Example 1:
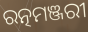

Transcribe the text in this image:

ରତ୍ନମଞ୍ଜରୀ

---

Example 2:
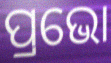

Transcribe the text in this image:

ପ୍ରଭୋ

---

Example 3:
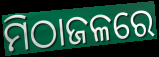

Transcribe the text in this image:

ମିଠାଜଳରେ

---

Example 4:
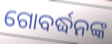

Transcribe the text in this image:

ଗୋବର୍ଦ୍ଧନଙ୍କ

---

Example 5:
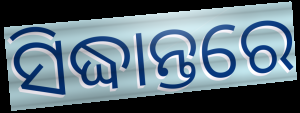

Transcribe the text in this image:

ସିଦ୍ଧାନ୍ତରେ